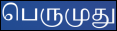
பெருமுது